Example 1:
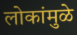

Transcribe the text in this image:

लोकांमुळे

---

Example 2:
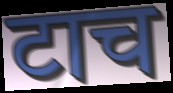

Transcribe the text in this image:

टाच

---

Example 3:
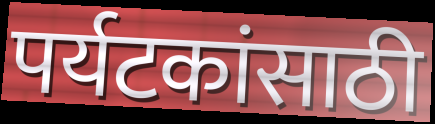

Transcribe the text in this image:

पर्यटकांसाठी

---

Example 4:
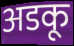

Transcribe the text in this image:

अडकू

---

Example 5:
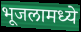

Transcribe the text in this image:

भूजलामध्ये